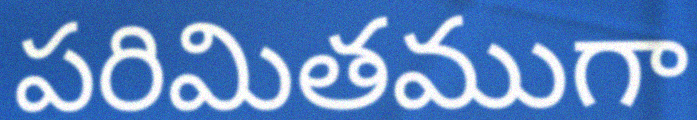
పరిమితముగా